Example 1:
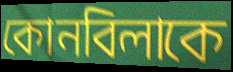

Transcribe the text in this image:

কোনবিলাকে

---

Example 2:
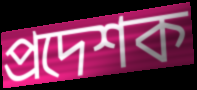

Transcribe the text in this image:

প্ৰদেশক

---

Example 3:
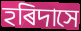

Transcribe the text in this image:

হৰিদাসে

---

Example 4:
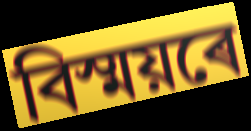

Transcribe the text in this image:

বিস্ময়ৰে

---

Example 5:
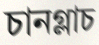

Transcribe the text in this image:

চানগ্লাচ